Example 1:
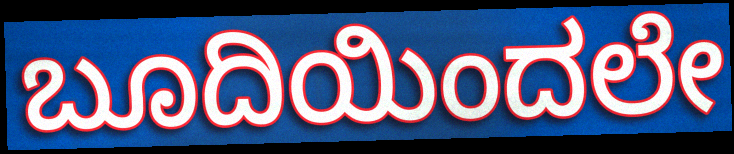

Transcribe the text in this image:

ಬೂದಿಯಿಂದಲೇ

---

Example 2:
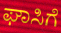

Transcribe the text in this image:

ಘಾಸಿಗೆ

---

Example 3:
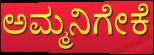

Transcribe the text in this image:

ಅಮ್ಮನಿಗೇಕೆ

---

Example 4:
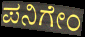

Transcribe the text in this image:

ಪನಿಗೇಂ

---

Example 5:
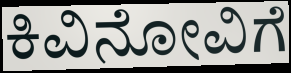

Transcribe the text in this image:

ಕಿವಿನೋವಿಗೆ